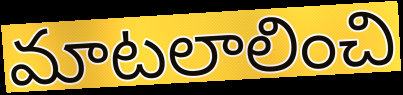
మాటలాలించి